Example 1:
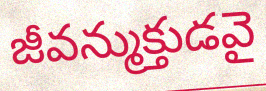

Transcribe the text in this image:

జీవన్ముక్తుడవై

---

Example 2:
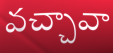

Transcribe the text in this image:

వచ్చావా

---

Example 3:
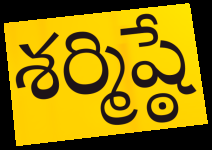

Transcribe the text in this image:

శర్మిష్ఠే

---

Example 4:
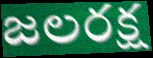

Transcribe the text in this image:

జలరక్ష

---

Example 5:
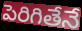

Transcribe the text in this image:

పెరిగితేనే